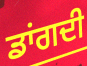
ਡਾਂਗਦੀ